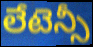
లేటెన్సీ